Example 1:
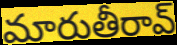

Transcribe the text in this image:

మారుతీరావ్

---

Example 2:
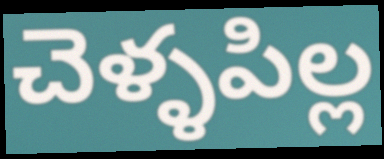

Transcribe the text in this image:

చెళ్ళపిల్ల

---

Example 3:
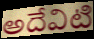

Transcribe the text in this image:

అదేవిటి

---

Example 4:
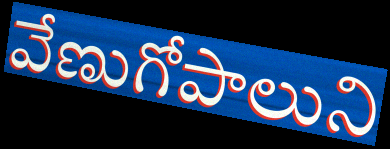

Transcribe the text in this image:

వేణుగోపాలుని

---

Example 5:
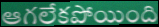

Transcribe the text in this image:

ఆగలేకపోయింది